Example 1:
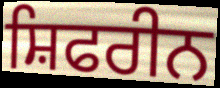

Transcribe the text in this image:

ਸ਼ਿਫਰੀਨ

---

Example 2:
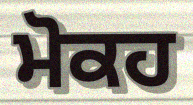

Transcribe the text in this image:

ਮੋਕਹ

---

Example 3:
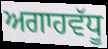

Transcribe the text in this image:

ਅਗਾਹਵੱਧੂ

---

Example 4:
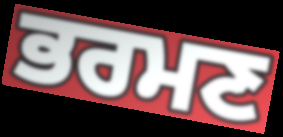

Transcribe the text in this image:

ਭਰਮਣ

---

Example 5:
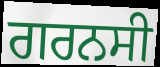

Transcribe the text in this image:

ਗਰਨਸੀ